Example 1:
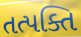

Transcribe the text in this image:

તત્પક્તિ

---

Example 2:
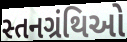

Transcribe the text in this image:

સ્તનગ્રંથિઓ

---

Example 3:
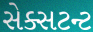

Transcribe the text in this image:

સેક્સટન્ટ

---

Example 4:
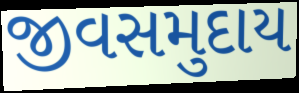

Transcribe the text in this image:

જીવસમુદાય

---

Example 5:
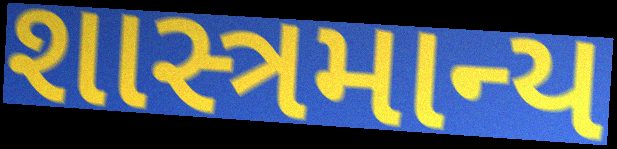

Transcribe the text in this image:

શાસ્ત્રમાન્ય